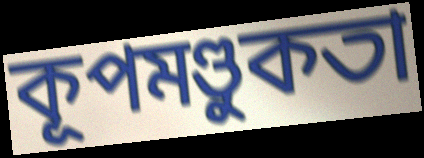
কূপমণ্ডুকতা